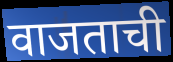
वाजताची